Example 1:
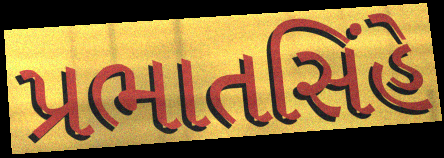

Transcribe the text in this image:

પ્રભાતસિંહે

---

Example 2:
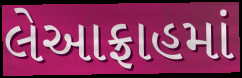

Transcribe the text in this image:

લેઆફ્રાહમાં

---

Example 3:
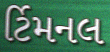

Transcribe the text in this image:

ર્ટિમનલ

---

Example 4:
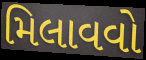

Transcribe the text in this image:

મિલાવવો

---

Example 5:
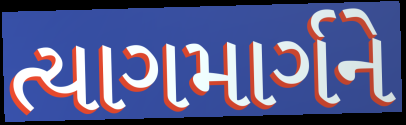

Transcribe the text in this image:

ત્યાગમાર્ગને